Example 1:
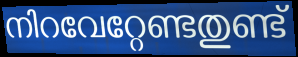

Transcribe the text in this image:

നിറവേറ്റേണ്ടതുണ്ട്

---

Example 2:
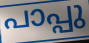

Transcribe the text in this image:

പാപ്പു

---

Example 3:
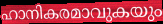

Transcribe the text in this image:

ഹാനികരമാവുകയും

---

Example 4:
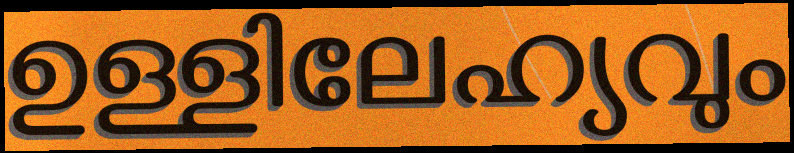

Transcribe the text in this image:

ഉള്ളിലേഹ്യവും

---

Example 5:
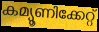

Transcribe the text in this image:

കമ്യൂണിക്കേറ്റ്